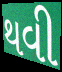
થવી